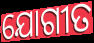
ଯୋଗୀତ